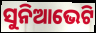
ସୁନିଆଭେଟି